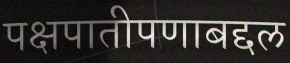
पक्षपातीपणाबद्दल